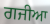
ਗਜੀਆ